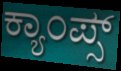
ಕ್ಯಾಂಪ್ಸ್